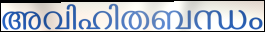
അവിഹിതബന്ധം